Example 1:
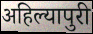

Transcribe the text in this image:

अहिल्यापुरी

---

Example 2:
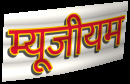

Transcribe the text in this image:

म्यूजीयम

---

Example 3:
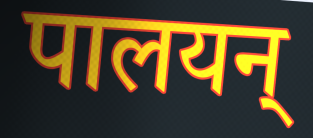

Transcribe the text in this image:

पालयन्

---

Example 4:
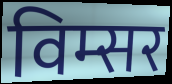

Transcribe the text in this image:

विम्सर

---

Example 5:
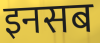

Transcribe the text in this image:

इनसब